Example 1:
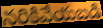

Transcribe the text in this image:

నరికివేయబడి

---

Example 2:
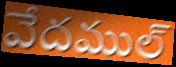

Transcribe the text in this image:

వేదముల్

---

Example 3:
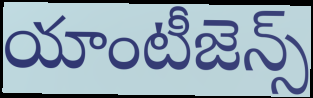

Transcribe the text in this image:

యాంటీజెన్స్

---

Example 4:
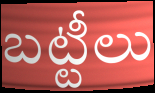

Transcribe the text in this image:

బట్టీలు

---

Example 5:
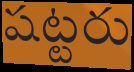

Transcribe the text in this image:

షట్టరు